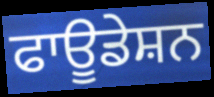
ਫਾਊਡੇਸ਼ਨ